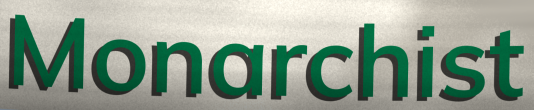
Monarchist